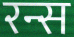
रन्स